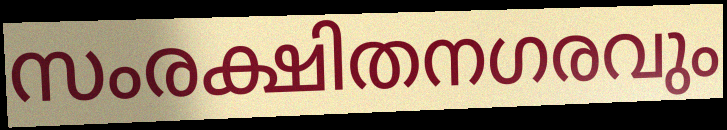
സംരക്ഷിതനഗരവും